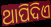
ଥାପିଦିଏ